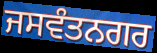
ਜਸਵੰਤਨਗਰ